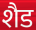
शैड